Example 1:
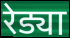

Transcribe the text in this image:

रेड्या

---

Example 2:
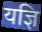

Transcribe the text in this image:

यज्ञि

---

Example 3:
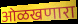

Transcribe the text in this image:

ओळखणारा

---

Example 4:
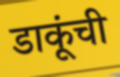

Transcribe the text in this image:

डाकूंची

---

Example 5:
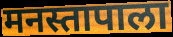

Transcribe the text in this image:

मनस्तापाला